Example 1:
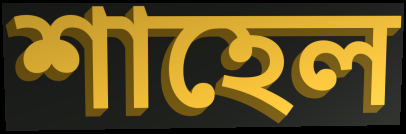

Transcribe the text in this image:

শাহেল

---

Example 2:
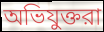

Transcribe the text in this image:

অভিযুক্তরা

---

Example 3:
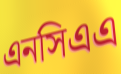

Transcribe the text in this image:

এনসিএএ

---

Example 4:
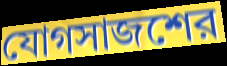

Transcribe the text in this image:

যোগসাজশের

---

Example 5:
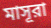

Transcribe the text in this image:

মাসূরা